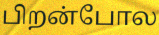
பிறன்போல